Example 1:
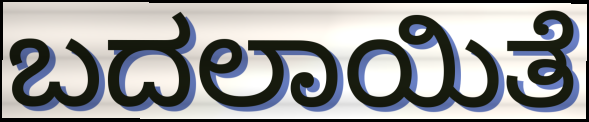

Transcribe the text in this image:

ಬದಲಾಯಿತೆ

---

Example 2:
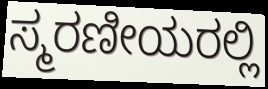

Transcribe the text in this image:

ಸ್ಮರಣೀಯರಲ್ಲಿ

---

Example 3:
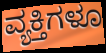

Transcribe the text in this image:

ವ್ಯಕ್ತಿಗಳೂ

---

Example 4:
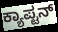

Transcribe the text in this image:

ಕ್ಯಾಪ್ಟನ್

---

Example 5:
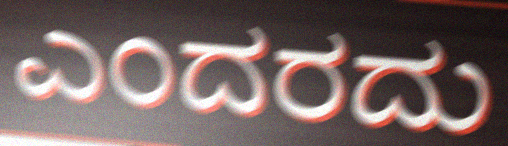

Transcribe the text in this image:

ಎಂದರದು